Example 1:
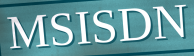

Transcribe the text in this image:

MSISDN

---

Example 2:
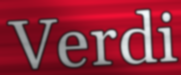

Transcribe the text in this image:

Verdi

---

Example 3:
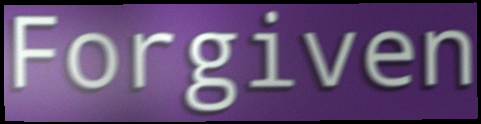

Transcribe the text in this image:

Forgiven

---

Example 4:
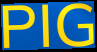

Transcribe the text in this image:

PIG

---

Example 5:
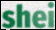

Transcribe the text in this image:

shei